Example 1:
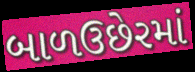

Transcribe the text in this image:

બાળઉછેરમાં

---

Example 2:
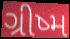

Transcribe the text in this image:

ગ્રીષ્મ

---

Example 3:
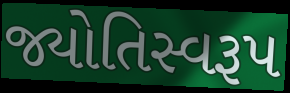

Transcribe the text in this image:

જ્યોતિસ્વરૂપ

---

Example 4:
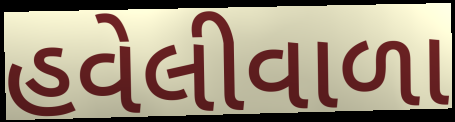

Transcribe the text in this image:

હવેલીવાળા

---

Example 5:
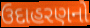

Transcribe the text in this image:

ઉદાહરણનો